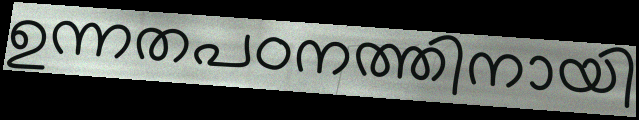
ഉന്നതപഠനത്തിനായി